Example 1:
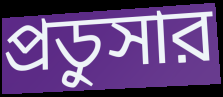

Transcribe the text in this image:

প্রডুসার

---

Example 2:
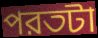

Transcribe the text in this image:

পরতটা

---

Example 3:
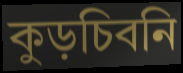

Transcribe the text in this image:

কুড়চিবনি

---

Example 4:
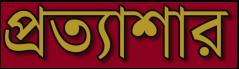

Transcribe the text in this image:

প্রত্যাশার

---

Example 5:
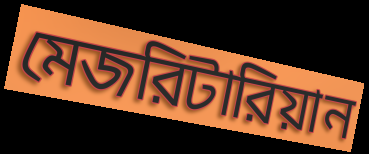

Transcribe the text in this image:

মেজরিটারিয়ান